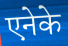
एनेके